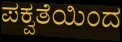
ಪಕ್ವತೆಯಿಂದ